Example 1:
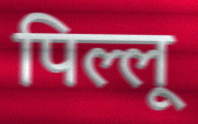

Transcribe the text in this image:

पिल्लू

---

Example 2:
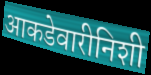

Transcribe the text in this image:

आकडेवारीनिशी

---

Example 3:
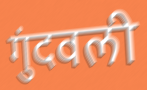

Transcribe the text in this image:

गुंदवली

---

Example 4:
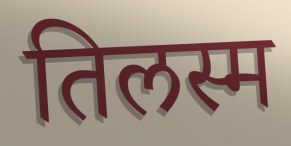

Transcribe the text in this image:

तिलस्म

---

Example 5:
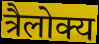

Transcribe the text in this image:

त्रैलोक्य